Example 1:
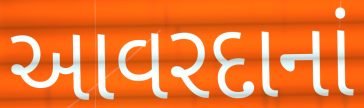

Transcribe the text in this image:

આવરદાનાં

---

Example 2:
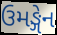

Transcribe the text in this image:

ઉમઙ્ગેન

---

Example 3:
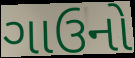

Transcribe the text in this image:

ગાઉનો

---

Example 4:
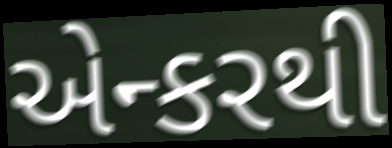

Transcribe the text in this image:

એન્કરથી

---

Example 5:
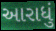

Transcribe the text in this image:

આરાધું